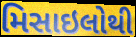
મિસાઇલોથી